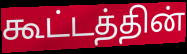
கூட்டத்தின்